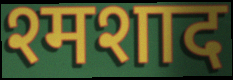
श्मशाद